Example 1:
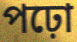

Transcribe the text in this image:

পঢ়ো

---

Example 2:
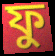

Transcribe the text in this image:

ফু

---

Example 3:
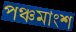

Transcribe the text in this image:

পঞ্চমাংশ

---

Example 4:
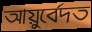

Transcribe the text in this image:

আয়ুৰ্বেদত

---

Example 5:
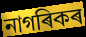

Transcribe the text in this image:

নাগৰিকৰ